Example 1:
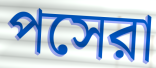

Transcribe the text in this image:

পসেরা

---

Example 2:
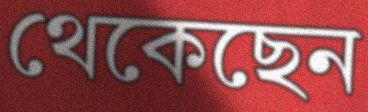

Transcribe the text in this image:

থেকেছেন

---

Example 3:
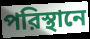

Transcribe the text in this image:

পরিস্থানে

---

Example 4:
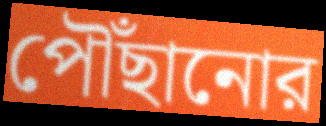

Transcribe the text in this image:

পৌঁছানোর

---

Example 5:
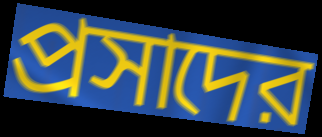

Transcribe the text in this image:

প্রসাদের